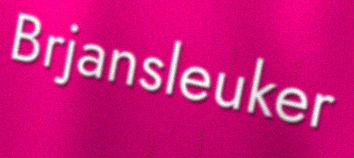
Brjansleuker